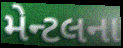
મેન્ટલના